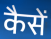
कैसें